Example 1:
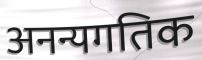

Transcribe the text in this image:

अनन्यगतिक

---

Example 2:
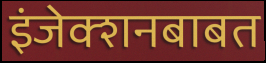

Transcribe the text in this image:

इंजेक्शनबाबत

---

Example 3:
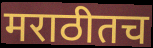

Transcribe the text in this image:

मराठीतच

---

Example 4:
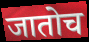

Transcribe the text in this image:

जातोच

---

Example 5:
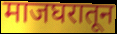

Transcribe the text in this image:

माजघरातून